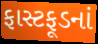
ફાસ્ટફૂડનાં